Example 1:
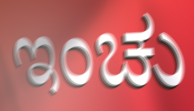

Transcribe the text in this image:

ಇಂಚು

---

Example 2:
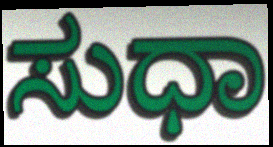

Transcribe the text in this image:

ಸುಧಾ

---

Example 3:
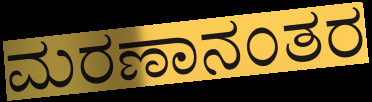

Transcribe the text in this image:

ಮರಣಾನಂತರ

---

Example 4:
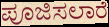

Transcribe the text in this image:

ಪೂಜಿಸಲಾರೆ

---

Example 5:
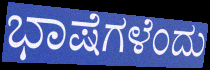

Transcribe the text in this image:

ಭಾಷೆಗಳೆಂದು